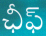
ఛీఫ్